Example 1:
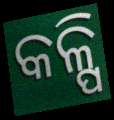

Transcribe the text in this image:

କଳ୍ପି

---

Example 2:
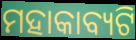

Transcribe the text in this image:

ମହାକାବ୍ୟଟି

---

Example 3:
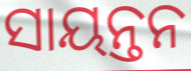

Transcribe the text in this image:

ସାୟନ୍ତନ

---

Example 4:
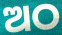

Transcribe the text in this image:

ଅଠ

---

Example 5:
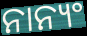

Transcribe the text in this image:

ନାନ୍ୟଂ